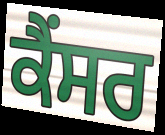
ਕੈੰਸਰ